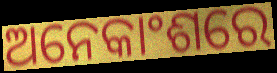
ଅନେକାଂଶରେ